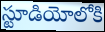
స్టూడియోలోకి